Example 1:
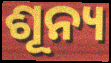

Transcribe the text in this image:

ଶୂନ୍ୟ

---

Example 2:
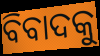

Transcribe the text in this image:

ବିବାଦକୁ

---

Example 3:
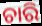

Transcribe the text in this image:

ଚାରି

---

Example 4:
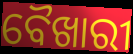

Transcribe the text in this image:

ବୈଖାରୀ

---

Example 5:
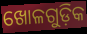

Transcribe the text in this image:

ଖୋଳଗୁଡ଼ିକ